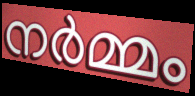
നർമ്മം